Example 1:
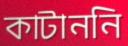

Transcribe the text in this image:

কাটাননি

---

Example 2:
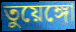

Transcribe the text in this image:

তুয়েঙ্গো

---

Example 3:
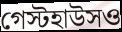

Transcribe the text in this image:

গেস্টহাউসও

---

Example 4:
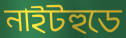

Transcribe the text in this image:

নাইটহুডে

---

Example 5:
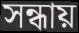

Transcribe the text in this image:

সন্ধায়